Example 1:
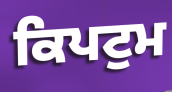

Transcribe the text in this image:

ਕਿਪਟੁਮ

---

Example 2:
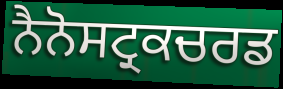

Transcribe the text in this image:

ਨੈਨੋਸਟ੍ਰਕਚਰਡ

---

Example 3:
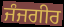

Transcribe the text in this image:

ਜੰਜਗੀਰ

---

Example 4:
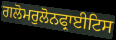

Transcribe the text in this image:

ਗਲੋਮਰੁਲੋਨਫ੍ਰਾਈਟਿਸ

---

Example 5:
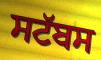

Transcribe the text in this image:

ਸਟੱਬਸ